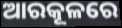
ଆରକୂଳରେ